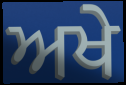
ਅਖੇ